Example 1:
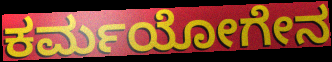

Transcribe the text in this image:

ಕರ್ಮಯೋಗೇನ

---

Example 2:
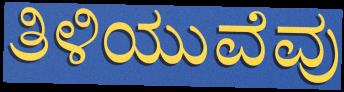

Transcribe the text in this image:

ತಿಳಿಯುವೆವು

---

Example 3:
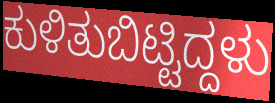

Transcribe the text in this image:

ಕುಳಿತುಬಿಟ್ಟಿದ್ದಳು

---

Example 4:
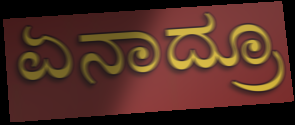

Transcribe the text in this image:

ಏನಾದ್ರೂ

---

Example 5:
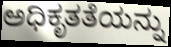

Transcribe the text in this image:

ಅಧಿಕೃತತೆಯನ್ನು